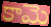
కామె